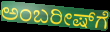
ಅಂಬರೀಷ್‌ಗೆ